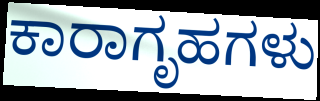
ಕಾರಾಗೃಹಗಳು